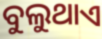
ବୁଲୁଥାଏ